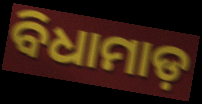
ବିଧାମାଡ଼